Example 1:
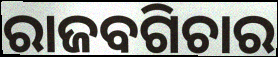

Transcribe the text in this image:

ରାଜବଗିଚାର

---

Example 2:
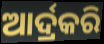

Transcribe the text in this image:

ଆର୍ଦ୍ରକରି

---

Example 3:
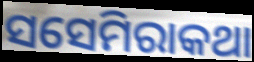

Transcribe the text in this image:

ସସେମିରାକଥା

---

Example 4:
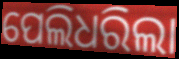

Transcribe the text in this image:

ପେଲିଧରିଲା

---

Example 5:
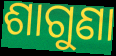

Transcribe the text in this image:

ଶାଗୁଣା